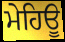
ਮੇਹਿਊ